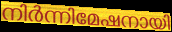
നിർന്നിമേഷനായി